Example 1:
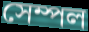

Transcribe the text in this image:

সেম্পল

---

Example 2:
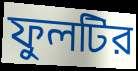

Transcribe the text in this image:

ফুলটির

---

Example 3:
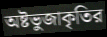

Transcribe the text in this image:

অষ্টভুজাকৃতির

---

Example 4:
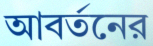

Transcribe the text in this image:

আবর্তনের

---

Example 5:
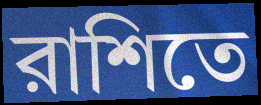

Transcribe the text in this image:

রাশিতে